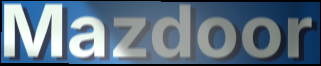
Mazdoor